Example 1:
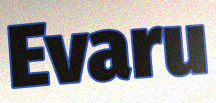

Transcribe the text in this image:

Evaru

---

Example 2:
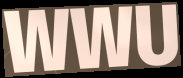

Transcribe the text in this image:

WWU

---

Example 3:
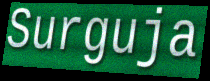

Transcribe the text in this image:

Surguja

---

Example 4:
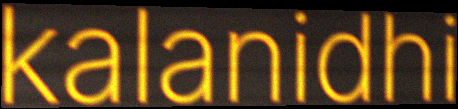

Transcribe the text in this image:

kalanidhi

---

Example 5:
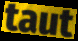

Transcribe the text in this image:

taut